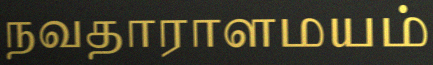
நவதாராளமயம்